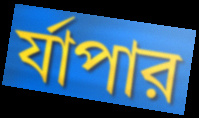
র্যাপার